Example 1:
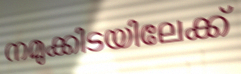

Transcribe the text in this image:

നമുക്കിടയിലേക്ക്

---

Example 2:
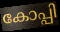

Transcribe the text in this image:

കോപ്പി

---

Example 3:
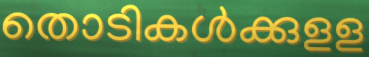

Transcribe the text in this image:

തൊടികൾക്കുളള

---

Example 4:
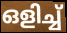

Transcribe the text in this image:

ഒളിച്ച്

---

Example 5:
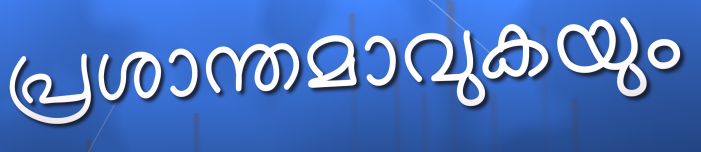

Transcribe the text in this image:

പ്രശാന്തമാവുകയും